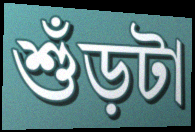
শুঁড়টা